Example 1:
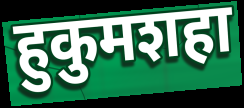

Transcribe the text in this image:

हुकुमशहा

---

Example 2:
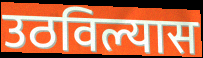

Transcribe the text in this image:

उठविल्यास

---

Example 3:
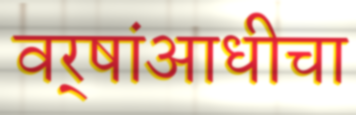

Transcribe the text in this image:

वर्षांआधीचा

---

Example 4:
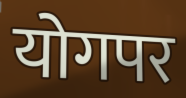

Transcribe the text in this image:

योगपर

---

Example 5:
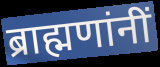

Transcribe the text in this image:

ब्राह्मणांनीं